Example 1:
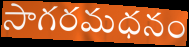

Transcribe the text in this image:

సాగరమధనం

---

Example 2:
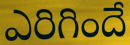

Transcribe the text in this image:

ఎరిగిందే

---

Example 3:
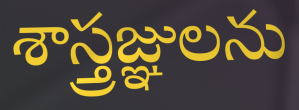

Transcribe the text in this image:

శాస్త్రజ్ఞులను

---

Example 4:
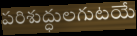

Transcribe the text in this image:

పరిశుద్ధులగుటయే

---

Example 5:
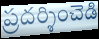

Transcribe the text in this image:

ప్రదర్శించెడి